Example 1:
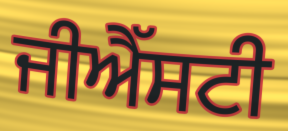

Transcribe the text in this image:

ਜੀਐੱਸਟੀ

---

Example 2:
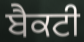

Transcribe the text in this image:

ਬੈਕਟੀ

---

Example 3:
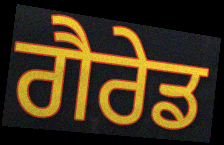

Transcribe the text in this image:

ਗੈਰੇਡ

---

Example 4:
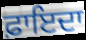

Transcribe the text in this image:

ਫ਼ਾਇਦਾ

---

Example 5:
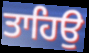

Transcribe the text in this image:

ਤਾਹਿਉ